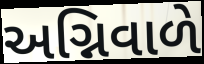
અગ્નિવાળે